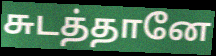
சுடத்தானே